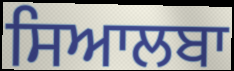
ਸਿਆਲਬਾ